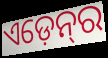
ଏଡ଼େନ୍‍ର